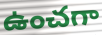
ఉంచగా